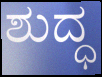
ಶುದ್ಧ